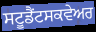
ਸਟੂਡੈਂਟਸਕਵੇਅਰ